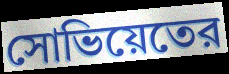
সোভিয়েতের